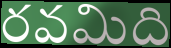
రవమిది